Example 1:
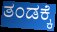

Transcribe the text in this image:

ತಂಡಕ್ಕೆ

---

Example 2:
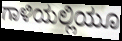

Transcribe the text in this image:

ಗಾಳಿಯಲ್ಲಿಯೂ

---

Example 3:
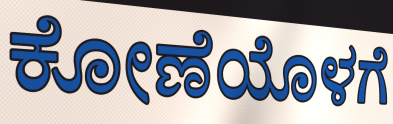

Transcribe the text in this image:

ಕೋಣೆಯೊಳಗೆ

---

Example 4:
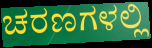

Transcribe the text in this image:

ಚರಣಗಳಲ್ಲಿ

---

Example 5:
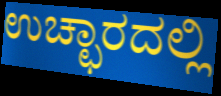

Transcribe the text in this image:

ಉಚ್ಛಾರದಲ್ಲಿ